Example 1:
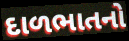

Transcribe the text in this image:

દાળભાતનો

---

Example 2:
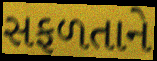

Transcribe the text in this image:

સફળતાને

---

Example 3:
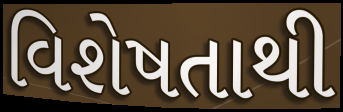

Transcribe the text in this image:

વિશેષતાથી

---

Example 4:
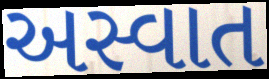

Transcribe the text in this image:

અસ્વાત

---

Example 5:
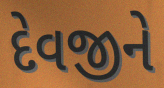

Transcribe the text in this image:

દેવજીને